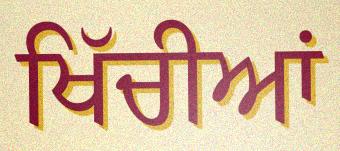
ਖਿੱਚੀਆਂ